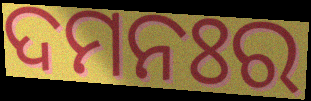
ଦମନଃର